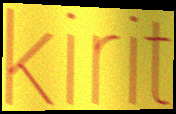
kirit